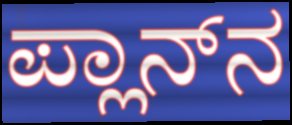
ಪ್ಲಾನ್‌ನ